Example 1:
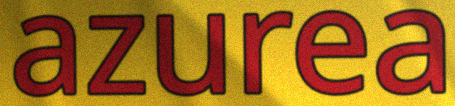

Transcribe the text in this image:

azurea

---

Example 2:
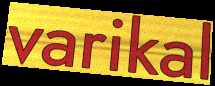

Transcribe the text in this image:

varikal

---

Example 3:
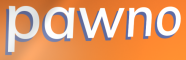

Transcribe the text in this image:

pawno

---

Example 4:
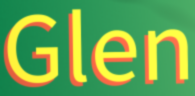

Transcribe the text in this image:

Glen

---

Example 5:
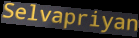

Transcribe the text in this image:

Selvapriyan